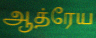
ஆத்ரேய